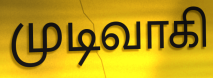
முடிவாகி